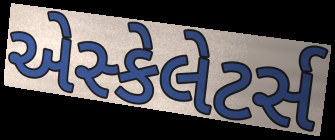
એસ્કેલેટર્સ